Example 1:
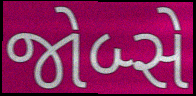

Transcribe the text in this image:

જોબ્સે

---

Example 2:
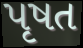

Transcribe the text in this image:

પૃષત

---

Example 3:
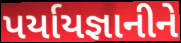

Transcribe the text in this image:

પર્યાયજ્ઞાનીને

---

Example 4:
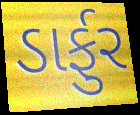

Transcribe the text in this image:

ડાર્ફુર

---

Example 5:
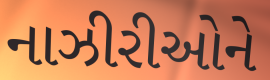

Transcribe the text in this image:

નાઝીરીઓને